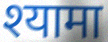
श्‍यामा